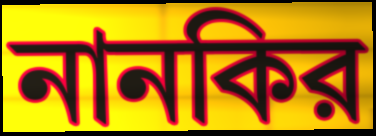
নানকির